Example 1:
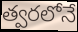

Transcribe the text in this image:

త్వరలోనే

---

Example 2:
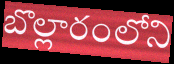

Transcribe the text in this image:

బొల్లారంలోని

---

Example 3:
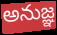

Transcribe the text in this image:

అనుజ్ఞ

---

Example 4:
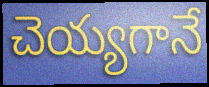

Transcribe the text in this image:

చెయ్యగానే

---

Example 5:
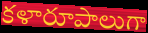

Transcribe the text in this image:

కళారూపాలుగా